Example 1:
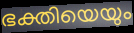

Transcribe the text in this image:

ഭക്തിയെയും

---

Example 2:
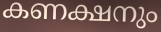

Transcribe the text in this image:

കണക്ഷനും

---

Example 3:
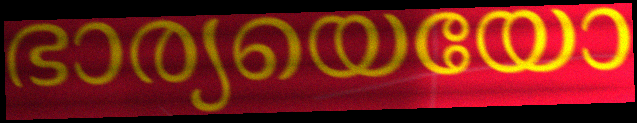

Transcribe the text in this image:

ഭാര്യയെയോ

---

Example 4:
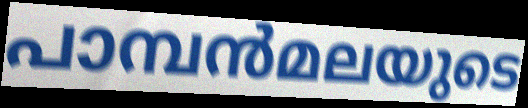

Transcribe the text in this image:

പാമ്പൻമലയുടെ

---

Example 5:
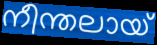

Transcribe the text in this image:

നീന്തലായ്